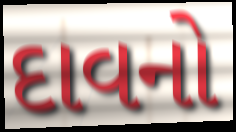
દાવનો